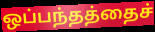
ஒப்பந்தத்தைச்